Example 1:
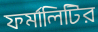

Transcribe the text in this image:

ফর্মালিটির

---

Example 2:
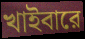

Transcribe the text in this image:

খাইবারে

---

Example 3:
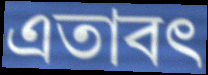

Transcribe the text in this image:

এতাবৎ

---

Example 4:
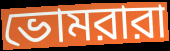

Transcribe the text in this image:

ভোমরারা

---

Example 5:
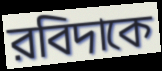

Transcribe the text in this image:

রবিদাকে